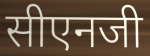
सीएनजी